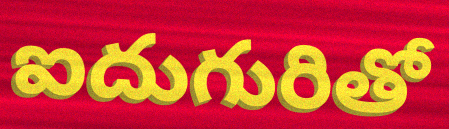
ఐదుగురితో